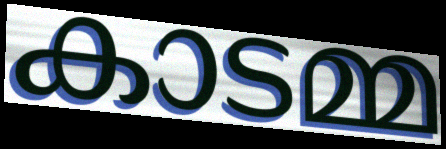
കാടമ്മ